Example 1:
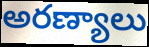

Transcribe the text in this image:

అరణ్యాలు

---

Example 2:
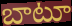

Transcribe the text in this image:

బాటూ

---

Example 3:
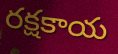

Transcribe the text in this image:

రక్షకాయ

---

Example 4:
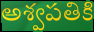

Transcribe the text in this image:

అశ్వపతికి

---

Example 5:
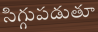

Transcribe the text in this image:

సిగ్గుపడుతూ